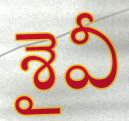
శైవీ